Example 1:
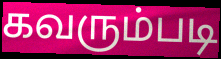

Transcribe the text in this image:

கவரும்படி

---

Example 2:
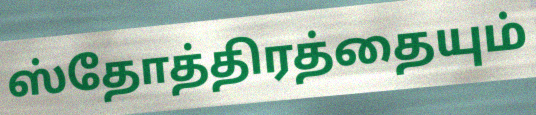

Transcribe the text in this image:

ஸ்தோத்திரத்தையும்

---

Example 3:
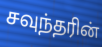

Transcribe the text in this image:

சவுந்தரின்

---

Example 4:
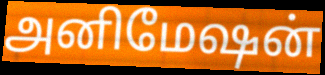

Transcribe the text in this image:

அனிமேஷன்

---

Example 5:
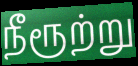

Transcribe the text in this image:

நீரூற்று